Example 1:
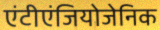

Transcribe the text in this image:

एंटीएंजियोजेनिक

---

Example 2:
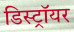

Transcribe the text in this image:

डिस्‍ट्रॉयर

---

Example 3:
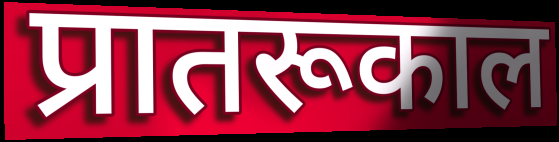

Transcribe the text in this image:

प्रातरूकाल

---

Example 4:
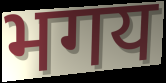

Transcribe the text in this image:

भगय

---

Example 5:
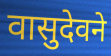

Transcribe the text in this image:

वासुदेवने